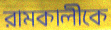
রামকালীকে